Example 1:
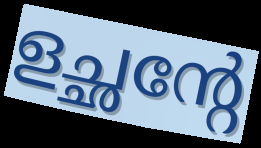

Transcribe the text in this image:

ളച്ഛന്റേ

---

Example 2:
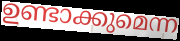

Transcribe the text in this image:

ഉണ്ടാക്കുമെന്ന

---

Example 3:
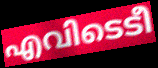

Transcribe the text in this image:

എവിടെടീ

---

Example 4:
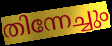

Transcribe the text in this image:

തിന്നേച്ചും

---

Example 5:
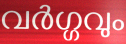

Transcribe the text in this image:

വർഗ്ഗവും